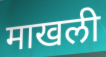
माखली